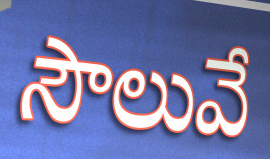
సౌలువే